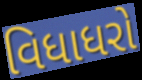
વિધાધરો